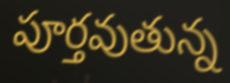
పూర్తవుతున్న